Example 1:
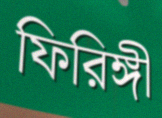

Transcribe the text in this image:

ফিরিঙ্গী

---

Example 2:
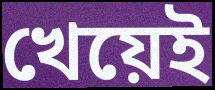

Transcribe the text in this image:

খেয়েই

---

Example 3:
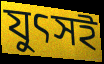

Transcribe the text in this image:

যুৎসই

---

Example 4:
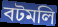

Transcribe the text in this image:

বটমলি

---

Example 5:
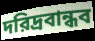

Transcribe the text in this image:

দরিদ্রবান্ধব